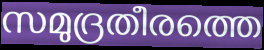
സമുദ്രതീരത്തെ